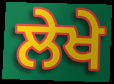
ਲੇਖੇ